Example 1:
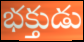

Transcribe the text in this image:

భక్తుడు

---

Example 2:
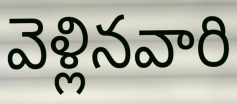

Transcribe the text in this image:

వెళ్లినవారి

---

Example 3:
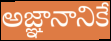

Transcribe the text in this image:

అజ్ఞానానికే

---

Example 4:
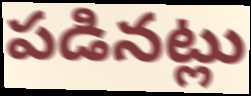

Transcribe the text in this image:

పడినట్లు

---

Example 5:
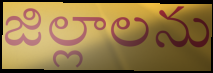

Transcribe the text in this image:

జిల్లాలను